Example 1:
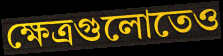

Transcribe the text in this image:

ক্ষেত্রগুলোতেও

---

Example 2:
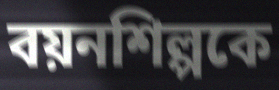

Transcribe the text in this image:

বয়নশিল্পকে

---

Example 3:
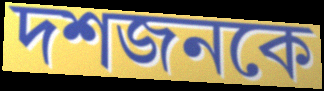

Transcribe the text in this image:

দশজনকে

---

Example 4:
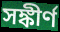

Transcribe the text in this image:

সঙ্কীর্ণ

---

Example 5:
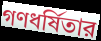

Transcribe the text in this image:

গণধর্ষিতার